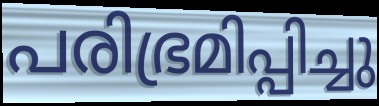
പരിഭ്രമിപ്പിച്ചു